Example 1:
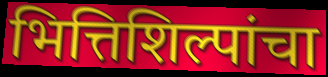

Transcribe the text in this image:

भित्तिशिल्पांचा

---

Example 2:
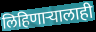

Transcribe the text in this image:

लिहिणाऱ्यालाही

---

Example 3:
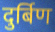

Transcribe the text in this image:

दुर्बिण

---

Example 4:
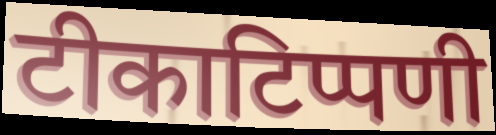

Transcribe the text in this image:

टीकाटिप्पणी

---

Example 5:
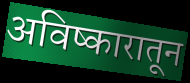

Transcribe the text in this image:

अविष्कारातून